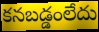
కనబడ్డంలేదు